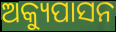
ଅକ୍ୟୁପାସନ